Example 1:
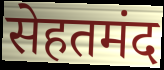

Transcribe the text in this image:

सेहतमंद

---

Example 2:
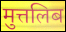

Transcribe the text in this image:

मुत्तलिब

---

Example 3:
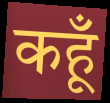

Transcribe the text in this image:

कहूँ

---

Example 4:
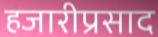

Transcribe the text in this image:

हजारीप्रसाद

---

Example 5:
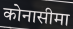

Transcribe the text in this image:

कोनासीमा